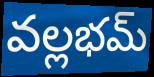
వల్లభమ్